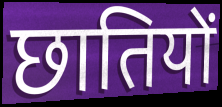
छातियों